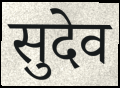
सुदेव